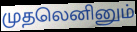
முதலெனினும்